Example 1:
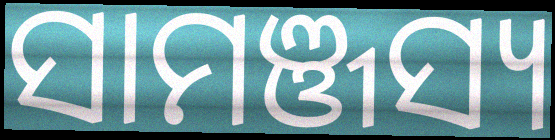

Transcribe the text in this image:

ସାମଞ୍ଜସ୍ୟ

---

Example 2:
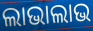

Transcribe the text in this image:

ଲାଭାଲାଭ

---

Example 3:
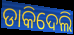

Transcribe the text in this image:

ଡାକିଦେଲି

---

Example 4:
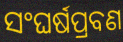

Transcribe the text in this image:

ସଂଘର୍ଷପ୍ରବଣ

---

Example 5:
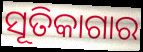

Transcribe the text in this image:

ସୂତିକାଗାର